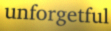
unforgetful